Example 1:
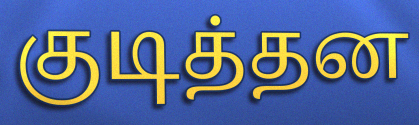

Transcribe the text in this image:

குடித்தன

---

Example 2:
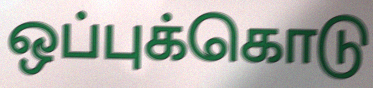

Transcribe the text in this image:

ஒப்புக்கொடு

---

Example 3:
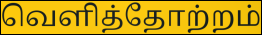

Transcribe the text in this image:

வெளித்தோற்றம்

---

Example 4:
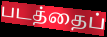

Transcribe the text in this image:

படத்தைப்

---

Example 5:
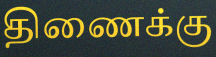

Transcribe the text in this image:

திணைக்கு